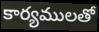
కార్యములతో